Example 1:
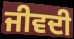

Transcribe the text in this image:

ਜੀਵਦੀ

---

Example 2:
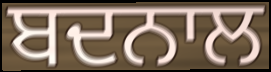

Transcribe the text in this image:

ਬਦਨਾਲ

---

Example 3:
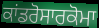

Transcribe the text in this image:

ਕਾਂਡਰੋਸਾਰਕੋਮਾ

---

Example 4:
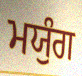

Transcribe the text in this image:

ਮਯੁੰਗ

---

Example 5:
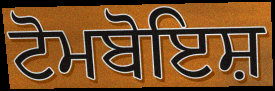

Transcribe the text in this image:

ਟੋਮਬੋਇਸ਼